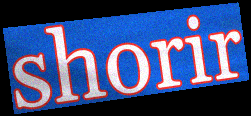
shorir